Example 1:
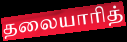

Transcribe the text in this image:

தலையாரித்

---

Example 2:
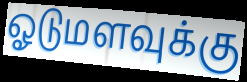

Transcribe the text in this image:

ஓடுமளவுக்கு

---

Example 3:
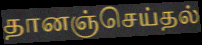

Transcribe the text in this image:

தானஞ்செய்தல்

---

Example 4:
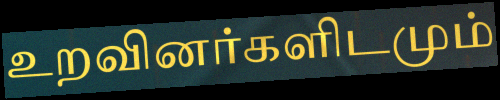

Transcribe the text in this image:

உறவினர்களிடமும்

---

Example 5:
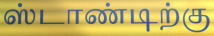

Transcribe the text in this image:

ஸ்டாண்டிற்கு